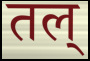
तल्